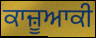
ਕਾਜ਼ੂਆਕੀ